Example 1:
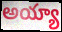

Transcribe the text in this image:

అయ్యా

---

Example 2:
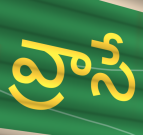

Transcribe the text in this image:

వ్రాసే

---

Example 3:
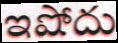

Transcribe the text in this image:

ఇషోదు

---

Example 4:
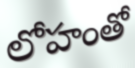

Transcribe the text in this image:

లోహంతో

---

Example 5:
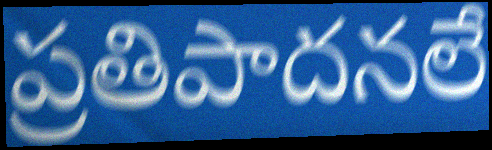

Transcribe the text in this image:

ప్రతిపాదనలే